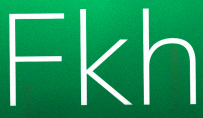
Fkh